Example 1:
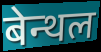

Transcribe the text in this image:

बेन्थल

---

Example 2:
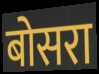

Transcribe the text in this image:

बोसरा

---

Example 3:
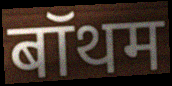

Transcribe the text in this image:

बॉथम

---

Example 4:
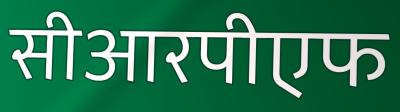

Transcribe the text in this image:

सीआरपीएफ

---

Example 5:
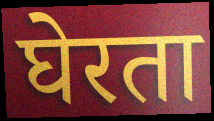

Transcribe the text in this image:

घेरता